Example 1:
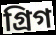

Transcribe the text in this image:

গ্রিগ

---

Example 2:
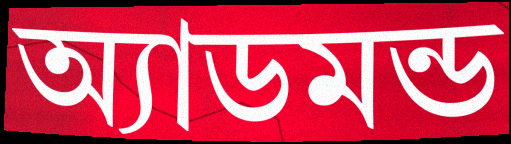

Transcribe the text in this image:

অ্যাডমন্ড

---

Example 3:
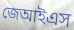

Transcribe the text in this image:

জেআইএস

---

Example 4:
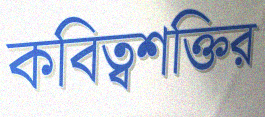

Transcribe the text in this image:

কবিত্বশক্তির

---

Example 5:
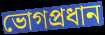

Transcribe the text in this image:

ভোগপ্রধান